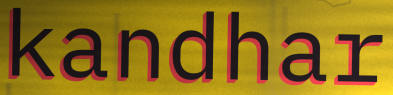
kandhar